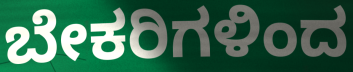
ಬೇಕರಿಗಳಿಂದ